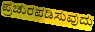
ಪ್ರಚುರಪಡಿಸುವುದು